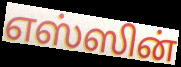
எஸ்ஸின்